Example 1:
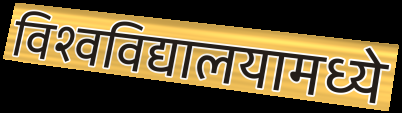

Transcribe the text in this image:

विश्वविद्यालयामध्ये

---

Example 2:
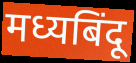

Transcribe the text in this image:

मध्यबिंदू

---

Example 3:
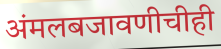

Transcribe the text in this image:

अंमलबजावणीचीही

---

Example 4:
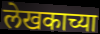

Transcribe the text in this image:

लेखकाच्या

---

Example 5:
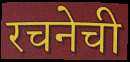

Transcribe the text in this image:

रचनेची